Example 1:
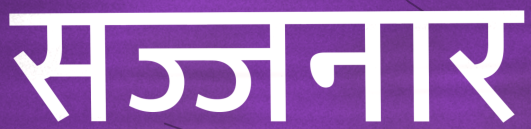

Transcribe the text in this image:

सज्जनार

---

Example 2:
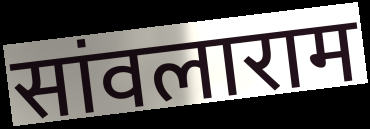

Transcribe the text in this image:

सांवलाराम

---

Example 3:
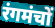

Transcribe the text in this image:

रंगमंचों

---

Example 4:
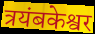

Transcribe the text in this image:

त्रयंबकेश्वर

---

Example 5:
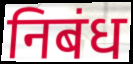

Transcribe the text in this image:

निबंध